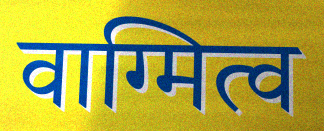
वाग्मित्व